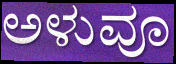
ಅಳುವೂ